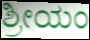
ಶ್ರೀಯಂ